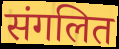
संगलित